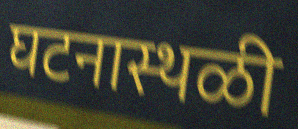
घटनास्थळी